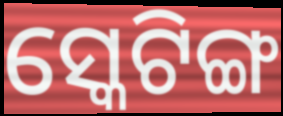
ସ୍କେଟିଙ୍ଗ